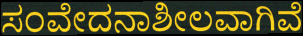
ಸಂವೇದನಾಶೀಲವಾಗಿವೆ